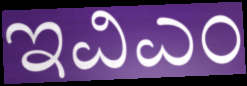
ಇವಿಎಂ